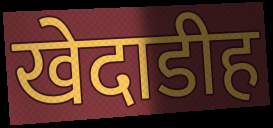
खेदाडीह